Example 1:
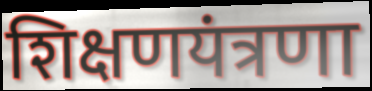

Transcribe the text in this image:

शिक्षणयंत्रणा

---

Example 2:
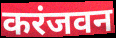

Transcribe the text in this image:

करंजवन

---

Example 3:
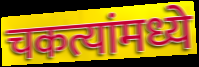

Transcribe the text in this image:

चकत्यांमध्ये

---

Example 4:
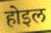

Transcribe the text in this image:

होइल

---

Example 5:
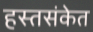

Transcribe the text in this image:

हस्तसंकेत